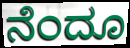
ನೆಂದೂ